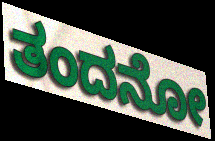
ತಂದನೋ